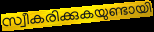
സ്വീകരിക്കുകയുണ്ടായി